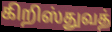
கிறிஸ்துவத்